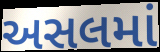
અસલમાં